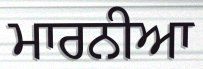
ਮਾਰਨੀਆ